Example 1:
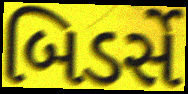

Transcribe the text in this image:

બિડર્સે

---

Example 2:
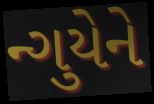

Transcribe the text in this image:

ન્ગુયેને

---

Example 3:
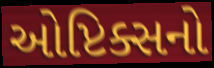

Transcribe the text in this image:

ઓપ્ટિક્સનો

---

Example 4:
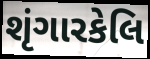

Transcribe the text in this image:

શૃંગારકેલિ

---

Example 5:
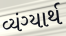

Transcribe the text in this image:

વ્યંગ્યાર્થ